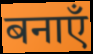
बनाएँ